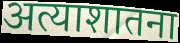
अत्याशातना